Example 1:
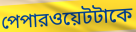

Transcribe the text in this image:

পেপারওয়েটটাকে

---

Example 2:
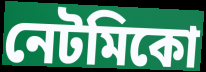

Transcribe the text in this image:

নেটমিকো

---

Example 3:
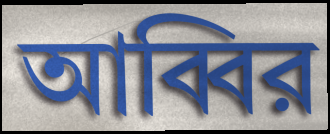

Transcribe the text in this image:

আব্বির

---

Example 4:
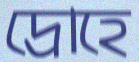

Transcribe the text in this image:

দ্রোহে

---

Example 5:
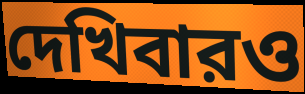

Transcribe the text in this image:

দেখিবারও